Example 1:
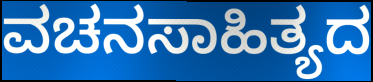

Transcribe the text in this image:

ವಚನಸಾಹಿತ್ಯದ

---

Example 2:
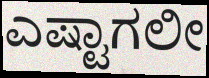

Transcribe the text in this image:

ಎಷ್ಟಾಗಲೀ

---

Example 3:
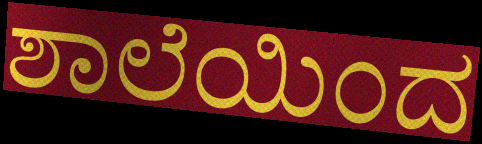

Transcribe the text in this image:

ಶಾಲೆಯಿಂದ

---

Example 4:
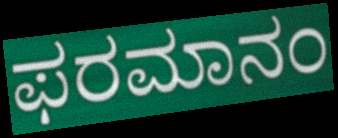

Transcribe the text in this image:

ಫರಮಾನಂ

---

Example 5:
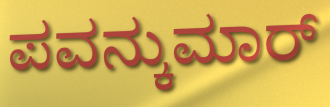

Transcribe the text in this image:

ಪವನ್ಕುಮಾರ್